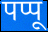
पप्पू